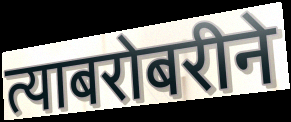
त्याबरोबरीने